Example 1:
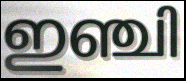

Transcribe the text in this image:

ഇഞ്ചി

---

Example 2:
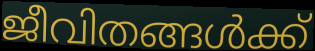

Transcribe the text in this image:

ജീവിതങ്ങൾക്ക്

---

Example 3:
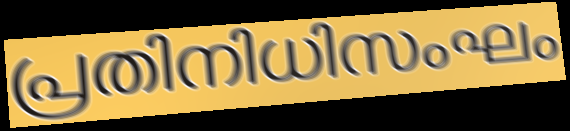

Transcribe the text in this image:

പ്രതിനിധിസംഘം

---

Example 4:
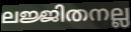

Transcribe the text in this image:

ലജ്ജിതനല്ല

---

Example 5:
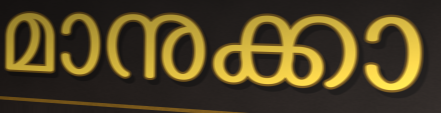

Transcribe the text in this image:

മാനുക്കാ